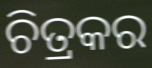
ଚିତ୍ରକର